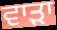
ਵਾੜਾ